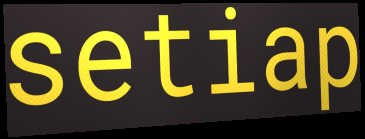
setiap